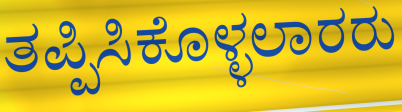
ತಪ್ಪಿಸಿಕೊಳ್ಳಲಾರರು